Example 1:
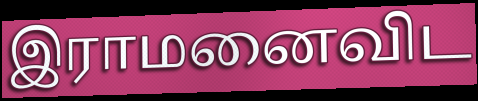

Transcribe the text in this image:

இராமனைவிட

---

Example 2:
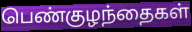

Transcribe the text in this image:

பெண்குழந்தைகள்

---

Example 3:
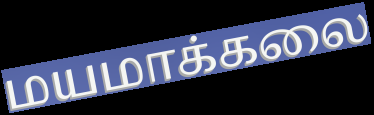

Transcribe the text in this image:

மயமாக்கலை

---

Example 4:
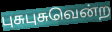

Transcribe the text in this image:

புசுபுசுவென்ற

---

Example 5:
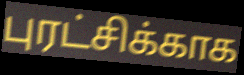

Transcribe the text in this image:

புரட்சிக்காக